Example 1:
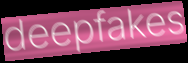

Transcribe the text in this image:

deepfakes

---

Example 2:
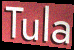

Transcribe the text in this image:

Tula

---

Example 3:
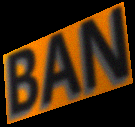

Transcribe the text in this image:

BAN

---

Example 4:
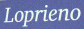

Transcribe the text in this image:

Loprieno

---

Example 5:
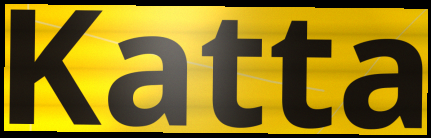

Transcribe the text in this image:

Katta